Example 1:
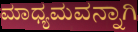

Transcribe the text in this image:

ಮಾಧ್ಯಮವನ್ನಾಗಿ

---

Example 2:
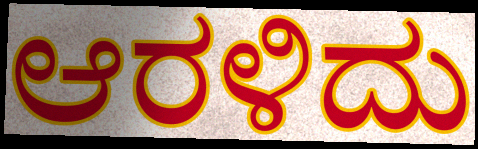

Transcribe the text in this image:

ಆರಳಿದು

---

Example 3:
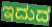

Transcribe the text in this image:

ಇದುದ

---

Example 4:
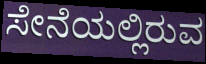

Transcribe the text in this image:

ಸೇನೆಯಲ್ಲಿರುವ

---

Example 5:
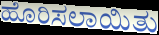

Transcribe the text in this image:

ಹೊರಿಸಲಾಯಿತು